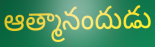
ఆత్మానందుడు